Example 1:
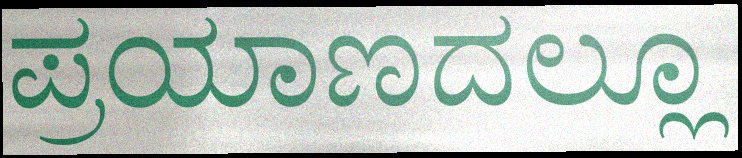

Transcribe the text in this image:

ಪ್ರಯಾಣದಲ್ಲೂ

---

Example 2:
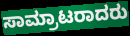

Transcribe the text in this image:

ಸಾಮ್ರಾಟರಾದರು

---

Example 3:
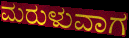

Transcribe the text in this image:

ಮರುಳುವಾಗ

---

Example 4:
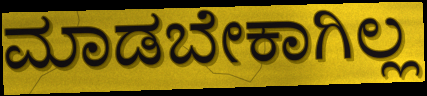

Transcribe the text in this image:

ಮಾಡಬೇಕಾಗಿಲ್ಲ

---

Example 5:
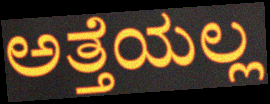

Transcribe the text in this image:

ಅತ್ತೆಯಲ್ಲ